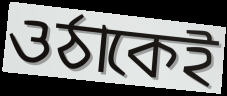
ওঠাকেই